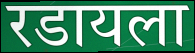
रडायला